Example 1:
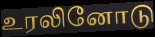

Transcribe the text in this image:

உரலினோடு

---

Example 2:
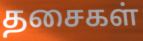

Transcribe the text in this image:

தசைகள்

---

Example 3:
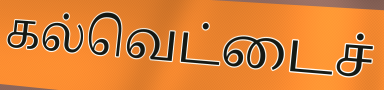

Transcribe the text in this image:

கல்வெட்டைச்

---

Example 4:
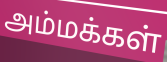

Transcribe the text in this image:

அம்மக்கள்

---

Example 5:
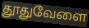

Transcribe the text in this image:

தூதுவேளை